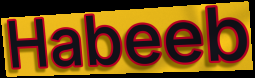
Habeeb